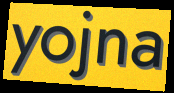
yojna